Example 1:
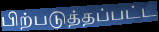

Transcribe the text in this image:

பிற்படுத்தப்பட்ட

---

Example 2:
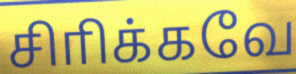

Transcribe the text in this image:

சிரிக்கவே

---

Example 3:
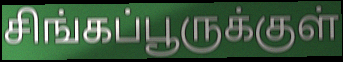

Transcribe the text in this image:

சிங்கப்பூருக்குள்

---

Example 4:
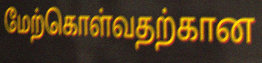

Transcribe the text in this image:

மேற்கொள்வதற்கான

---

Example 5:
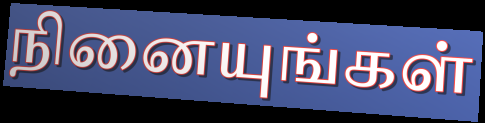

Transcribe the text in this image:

நினையுங்கள்